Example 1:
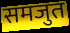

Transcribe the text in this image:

समजुत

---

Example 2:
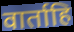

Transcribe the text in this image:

वार्ताहि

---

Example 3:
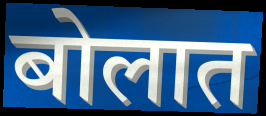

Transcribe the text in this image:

बोलात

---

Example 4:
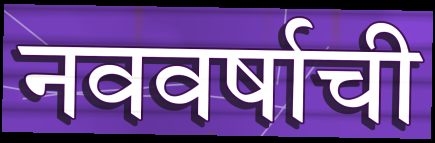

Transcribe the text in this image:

नववर्षाची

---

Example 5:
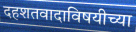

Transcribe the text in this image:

दहशतवादाविषयीच्या